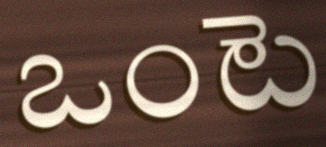
ఒంటె